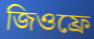
জিওফ্ৰে